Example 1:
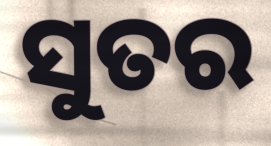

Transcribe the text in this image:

ସୁତର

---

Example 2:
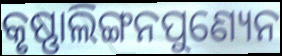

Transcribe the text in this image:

କୃଷ୍ଣାଲିଙ୍ଗନପୁଣ୍ଯେନ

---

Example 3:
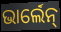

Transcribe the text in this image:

ଭାର୍ଲେନ୍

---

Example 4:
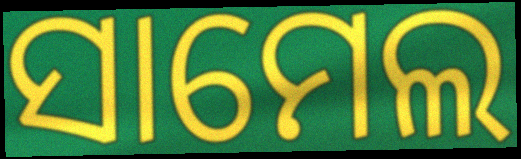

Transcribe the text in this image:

ସାମେଲ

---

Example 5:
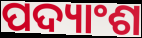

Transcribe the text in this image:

ପଦ୍ୟାଂଶ